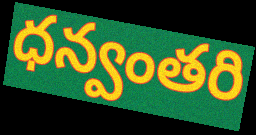
ధన్వంతరి